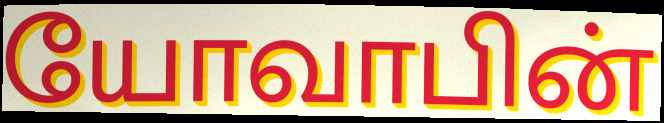
யோவாபின்